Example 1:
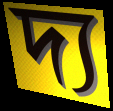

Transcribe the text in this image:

দ্য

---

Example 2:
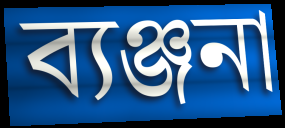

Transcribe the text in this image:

ব্যঞ্জনা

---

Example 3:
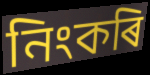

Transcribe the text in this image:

নিংকৰি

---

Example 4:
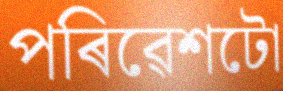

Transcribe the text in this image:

পৰিৱেশটো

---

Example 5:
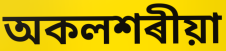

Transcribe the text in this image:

অকলশৰীয়া